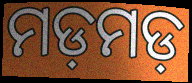
ମଡ଼ମଡ଼